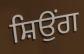
ਸ਼ਿਉਂਗ